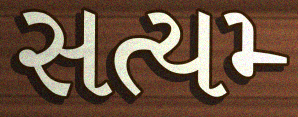
સત્યમ્‍